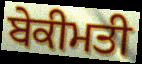
ਬੇਕੀਮਤੀ